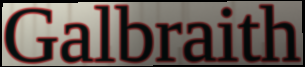
Galbraith